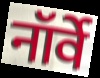
नॉर्वे